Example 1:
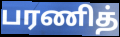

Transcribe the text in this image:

பரணித்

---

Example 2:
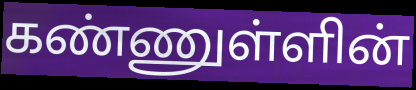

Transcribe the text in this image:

கண்ணுள்ளின்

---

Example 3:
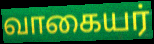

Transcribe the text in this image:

வாகையர்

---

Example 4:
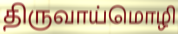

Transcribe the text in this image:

திருவாய்மொழி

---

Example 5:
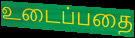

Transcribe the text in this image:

உடைப்பதை